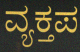
ವ್ಯಕ್ತಪ